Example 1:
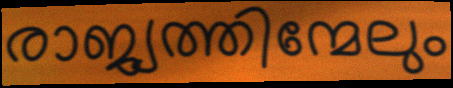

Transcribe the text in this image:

രാജ്യത്തിന്മേലും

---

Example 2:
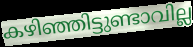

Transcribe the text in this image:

കഴിഞ്ഞിട്ടുണ്ടാവില്ല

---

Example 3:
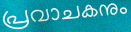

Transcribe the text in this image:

പ്രവാചകനും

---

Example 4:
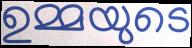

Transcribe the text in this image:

ഉമ്മയുടെ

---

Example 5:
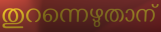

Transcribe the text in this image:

തുറന്നെഴുതാന്